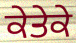
ਕੇਤੇਕੇ